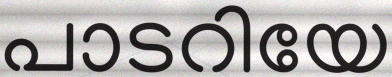
പാടറിയേ